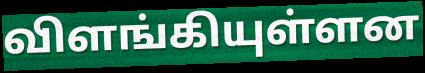
விளங்கியுள்ளன